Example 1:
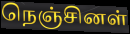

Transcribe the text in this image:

நெஞ்சினள்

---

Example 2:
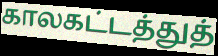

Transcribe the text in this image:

காலகட்டத்துத்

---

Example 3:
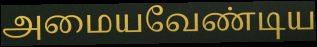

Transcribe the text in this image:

அமையவேண்டிய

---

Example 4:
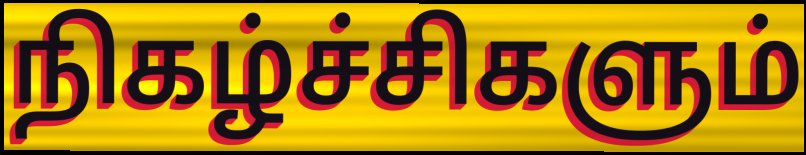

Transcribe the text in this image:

நிகழ்ச்சிகளும்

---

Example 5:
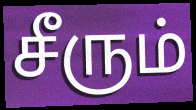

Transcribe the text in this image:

சீரும்